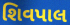
શિવપાલ